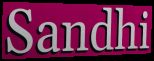
Sandhi